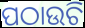
ପଠାଉଚି